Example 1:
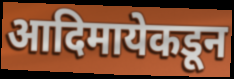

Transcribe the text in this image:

आदिमायेकडून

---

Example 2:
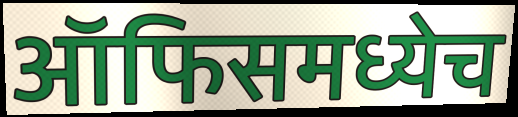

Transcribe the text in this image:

ऑफिसमध्येच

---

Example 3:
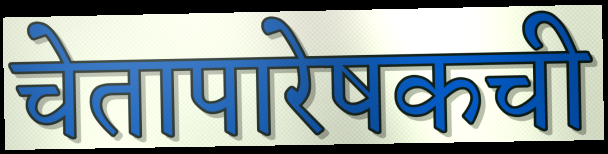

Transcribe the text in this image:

चेतापारेषकची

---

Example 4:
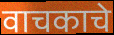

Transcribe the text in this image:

वाचकाचे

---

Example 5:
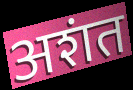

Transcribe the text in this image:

अशंत